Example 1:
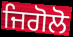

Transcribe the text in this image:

ਜਿਗੋਲੋ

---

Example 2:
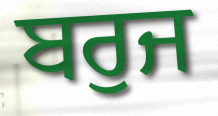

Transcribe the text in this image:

ਬਰੁਜ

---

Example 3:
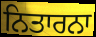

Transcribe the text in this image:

ਨਿਤਾਰਨਾ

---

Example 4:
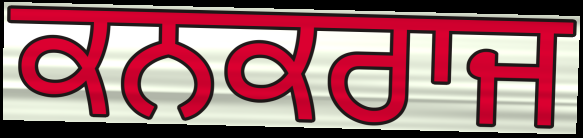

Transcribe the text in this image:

ਕਨਕਰਾਜ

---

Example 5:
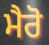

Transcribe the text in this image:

ਮੈਰੋ